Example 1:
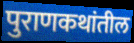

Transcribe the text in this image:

पुराणकथांतील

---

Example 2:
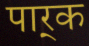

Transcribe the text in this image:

पार्क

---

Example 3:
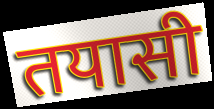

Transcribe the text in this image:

तयासी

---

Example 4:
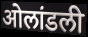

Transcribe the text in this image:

ओलांडली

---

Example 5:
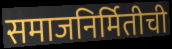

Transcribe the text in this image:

समाजनिर्मितीची